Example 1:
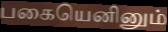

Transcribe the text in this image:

பகையெனினும்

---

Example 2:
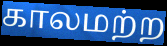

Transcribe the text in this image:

காலமற்ற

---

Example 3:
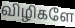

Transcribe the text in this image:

விழிகளே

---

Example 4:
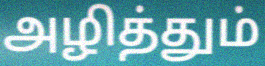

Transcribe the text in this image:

அழித்தும்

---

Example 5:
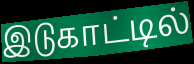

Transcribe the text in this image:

இடுகாட்டில்